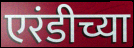
एरंडीच्या